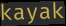
kayak